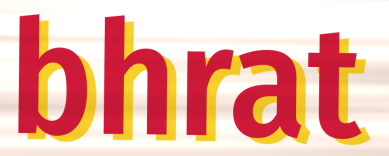
bhrat